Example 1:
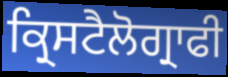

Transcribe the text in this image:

ਕ੍ਰਿਸਟੈਲੋਗ੍ਰਾਫੀ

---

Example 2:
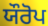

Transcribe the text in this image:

ਯੌਰੋਪ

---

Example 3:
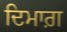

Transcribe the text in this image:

ਦਿਮਾਗ਼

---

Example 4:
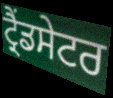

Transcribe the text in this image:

ਟ੍ਰੈਂਡਸੇਟਰ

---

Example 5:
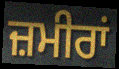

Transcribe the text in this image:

ਜ਼ਮੀਰਾਂ